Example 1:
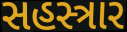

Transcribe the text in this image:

સહસ્ત્રાર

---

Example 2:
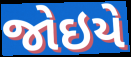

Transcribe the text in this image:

જોઇયે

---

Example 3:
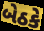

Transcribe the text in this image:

બેઠકે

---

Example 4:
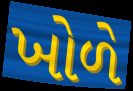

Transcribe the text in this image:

ખોળે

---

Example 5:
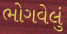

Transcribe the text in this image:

ભોગવેલું